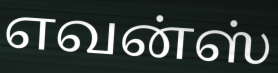
எவன்ஸ்